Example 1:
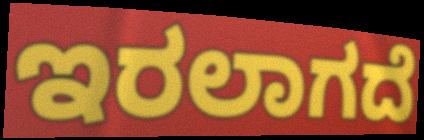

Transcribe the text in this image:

ಇರಲಾಗದೆ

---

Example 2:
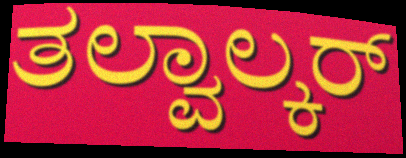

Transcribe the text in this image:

ತಲ್ವಾಲ್ಕರ್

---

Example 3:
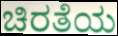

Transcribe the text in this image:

ಚಿರತೆಯ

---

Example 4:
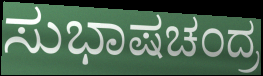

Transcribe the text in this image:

ಸುಭಾಷಚಂದ್ರ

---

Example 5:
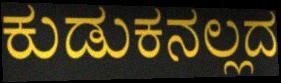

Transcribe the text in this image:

ಕುಡುಕನಲ್ಲದ